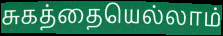
சுகத்தையெல்லாம்